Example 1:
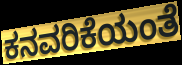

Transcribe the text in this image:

ಕನವರಿಕೆಯಂತೆ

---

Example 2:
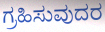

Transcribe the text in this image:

ಗ್ರಹಿಸುವುದರ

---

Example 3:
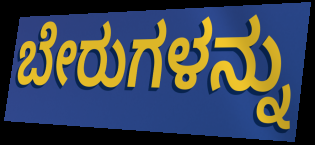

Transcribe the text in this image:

ಬೇರುಗಳನ್ನು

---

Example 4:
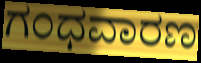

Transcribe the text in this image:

ಗಂಧವಾರಣ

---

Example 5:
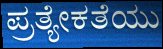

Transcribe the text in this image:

ಪ್ರತ್ಯೇಕತೆಯು